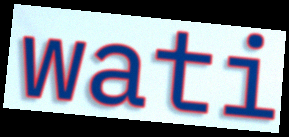
wati